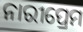
ନାରୀପ୍ରେମ